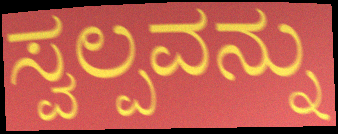
ಸ್ವಲ್ಪವನ್ನು